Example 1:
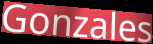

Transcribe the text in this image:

Gonzales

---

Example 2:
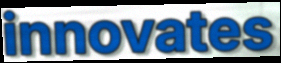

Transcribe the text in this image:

innovates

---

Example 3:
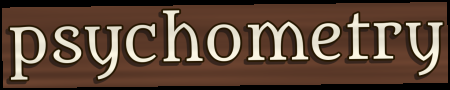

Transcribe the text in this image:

psychometry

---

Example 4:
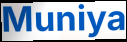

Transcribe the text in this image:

Muniya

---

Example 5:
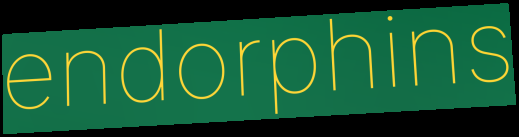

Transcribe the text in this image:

endorphins